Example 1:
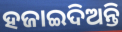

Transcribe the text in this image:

ହଜାଇଦିଅନ୍ତି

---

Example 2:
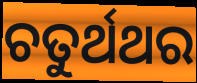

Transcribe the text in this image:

ଚତୁର୍ଥଥର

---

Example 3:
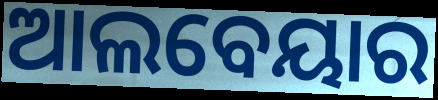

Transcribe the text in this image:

ଆଲବେୟାର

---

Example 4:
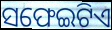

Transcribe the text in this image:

ସଫେଇଟିଏ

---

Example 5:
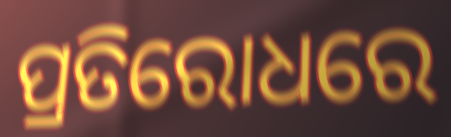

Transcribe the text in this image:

ପ୍ରତିରୋଧରେ